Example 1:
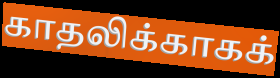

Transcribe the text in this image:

காதலிக்காகக்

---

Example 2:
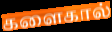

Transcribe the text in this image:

களைகால்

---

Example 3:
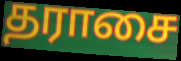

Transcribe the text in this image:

தராசை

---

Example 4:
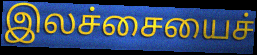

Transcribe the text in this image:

இலச்சையைச்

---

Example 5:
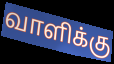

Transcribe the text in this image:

வாளிக்கு